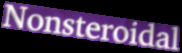
Nonsteroidal